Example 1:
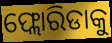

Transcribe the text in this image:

ଫ୍ଲୋରିଡାକୁ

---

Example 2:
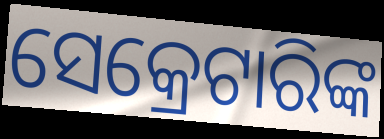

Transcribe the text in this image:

ସେକ୍ରେଟାରିଙ୍କ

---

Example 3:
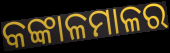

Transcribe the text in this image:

କଙ୍କାଳମାଳର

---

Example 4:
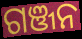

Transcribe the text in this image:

ଗଞ୍ଜନ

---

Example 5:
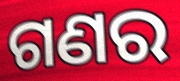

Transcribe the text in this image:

ଗଣର